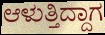
ಆಳುತ್ತಿದ್ದಾಗ